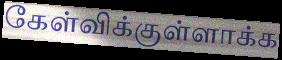
கேள்விக்குள்ளாக்க